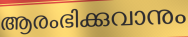
ആരംഭിക്കുവാനും